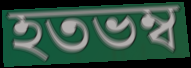
হতভম্ব